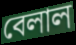
বেলাল